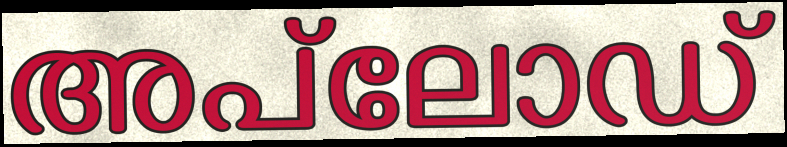
അപ്‌ലോഡ്